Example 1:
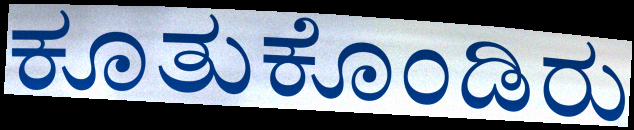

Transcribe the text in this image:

ಕೂತುಕೊಂಡಿರು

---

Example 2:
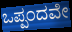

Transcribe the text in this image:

ಒಪ್ಪಂದವೇ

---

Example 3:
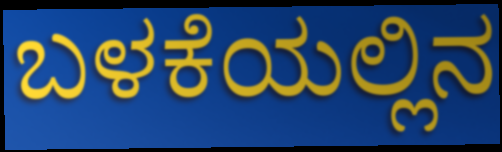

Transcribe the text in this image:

ಬಳಕೆಯಲ್ಲಿನ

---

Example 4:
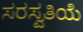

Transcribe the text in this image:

ಸರಸ್ವತಿಯೆ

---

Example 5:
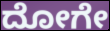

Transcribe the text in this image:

ದೋಗೇ